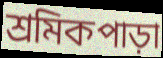
শ্রমিকপাড়া